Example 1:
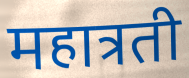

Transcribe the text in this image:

महात्रती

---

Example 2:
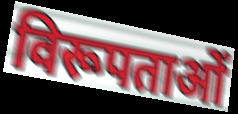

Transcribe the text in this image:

विरूपताओं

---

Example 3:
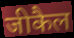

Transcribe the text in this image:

जीकैल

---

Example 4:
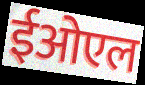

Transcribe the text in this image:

ईओएल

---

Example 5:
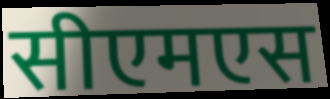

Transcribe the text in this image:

सीएमएस